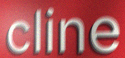
cline